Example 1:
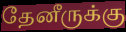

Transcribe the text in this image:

தேனீருக்கு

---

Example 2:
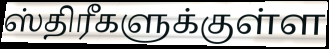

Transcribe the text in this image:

ஸ்திரீகளுக்குள்ள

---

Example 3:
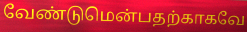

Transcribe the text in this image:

வேண்டுமென்பதற்காகவே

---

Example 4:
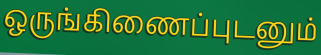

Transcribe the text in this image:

ஒருங்கிணைப்புடனும்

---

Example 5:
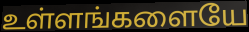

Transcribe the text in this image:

உள்ளங்களையே